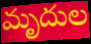
మృదుల